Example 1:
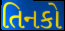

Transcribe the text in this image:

તિનકો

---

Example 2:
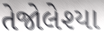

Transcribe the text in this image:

તેજોલેશ્યા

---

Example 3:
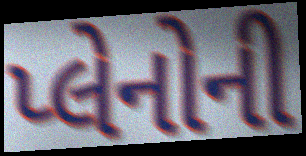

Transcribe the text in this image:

પ્લેનોની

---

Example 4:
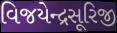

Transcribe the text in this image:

વિજયેન્દ્રસૂરિજી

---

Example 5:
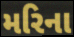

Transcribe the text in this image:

મરિના